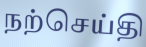
நற்செய்தி